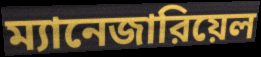
ম্যানেজারিয়েল